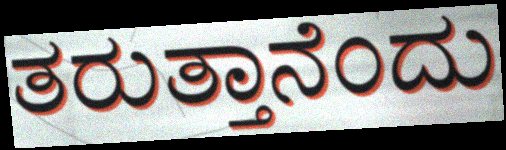
ತರುತ್ತಾನೆಂದು